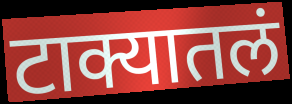
टाक्यातलं